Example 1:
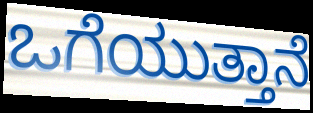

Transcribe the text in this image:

ಒಗೆಯುತ್ತಾನೆ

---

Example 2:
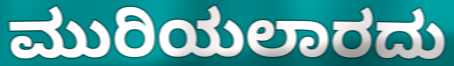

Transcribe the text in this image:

ಮುರಿಯಲಾರದು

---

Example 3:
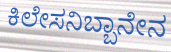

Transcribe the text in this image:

ಕಿಲೇಸನಿಬ್ಬಾನೇನ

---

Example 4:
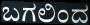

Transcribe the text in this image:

ಬಗಲಿಂದ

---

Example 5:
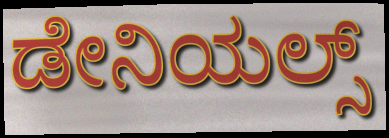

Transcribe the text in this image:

ಡೇನಿಯಲ್ಸ್